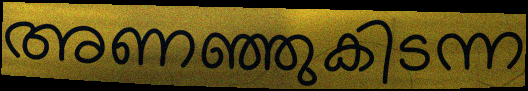
അണഞ്ഞുകിടന്ന